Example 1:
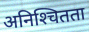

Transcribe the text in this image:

अनिश्‍चितता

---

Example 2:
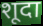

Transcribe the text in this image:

शूदा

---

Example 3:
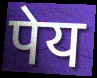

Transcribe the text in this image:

पेय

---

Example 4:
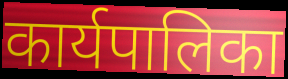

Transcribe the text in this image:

कार्यपालिका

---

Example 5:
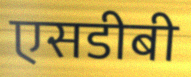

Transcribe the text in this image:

एसडीबी